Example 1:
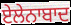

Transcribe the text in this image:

ਏਲੇਨਾਬਾਦ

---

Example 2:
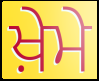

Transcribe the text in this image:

ਖ਼ੇਮੇ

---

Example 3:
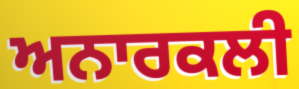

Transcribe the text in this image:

ਅਨਾਰਕਲੀ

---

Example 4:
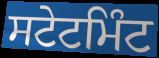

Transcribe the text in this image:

ਸਟੇਟਮਿੰਟ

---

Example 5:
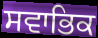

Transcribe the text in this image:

ਸਵਾਭਿਕ